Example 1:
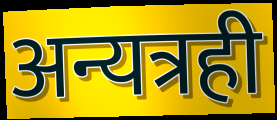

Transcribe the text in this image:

अन्यत्रही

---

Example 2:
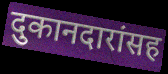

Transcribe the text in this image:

दुकानदारांसह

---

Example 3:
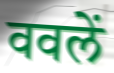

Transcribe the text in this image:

ववलें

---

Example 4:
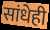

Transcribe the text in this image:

सांधेही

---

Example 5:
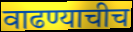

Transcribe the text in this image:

वाढण्याचीच